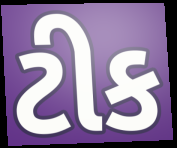
ટીક